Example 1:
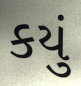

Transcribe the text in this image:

કયું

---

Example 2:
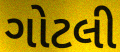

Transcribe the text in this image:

ગોટલી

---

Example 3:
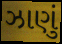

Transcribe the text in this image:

ઝાણું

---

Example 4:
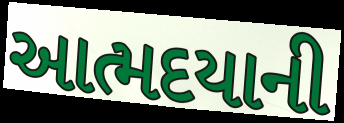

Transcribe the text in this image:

આત્મદયાની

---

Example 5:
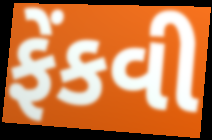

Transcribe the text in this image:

ફેંકવી